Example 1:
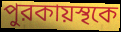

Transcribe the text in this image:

পুরকায়স্থকে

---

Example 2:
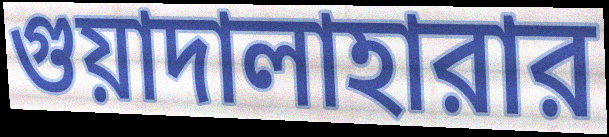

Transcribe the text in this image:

গুয়াদালাহারার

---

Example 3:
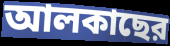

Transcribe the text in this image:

আলকাছের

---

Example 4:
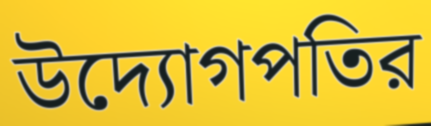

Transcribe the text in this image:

উদ্যোগপতির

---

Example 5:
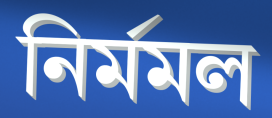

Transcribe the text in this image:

নির্মমল